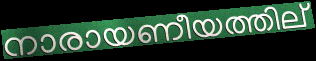
നാരായണീയത്തില്